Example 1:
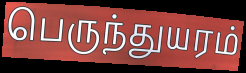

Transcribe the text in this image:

பெருந்துயரம்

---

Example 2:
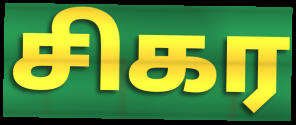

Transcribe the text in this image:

சிகர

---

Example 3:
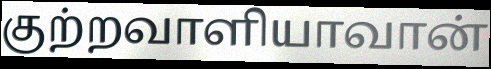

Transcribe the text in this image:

குற்றவாளியாவான்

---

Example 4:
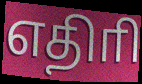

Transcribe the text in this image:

எதிரி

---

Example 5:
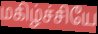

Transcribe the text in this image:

மகிழ்ச்சியே